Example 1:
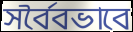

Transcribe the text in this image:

সর্বৈবভাবে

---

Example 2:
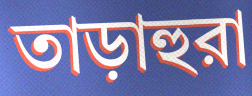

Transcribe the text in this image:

তাড়াহুরা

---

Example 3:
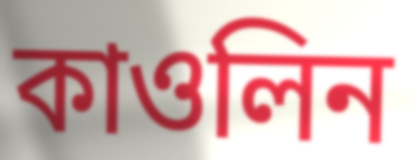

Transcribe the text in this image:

কাওলিন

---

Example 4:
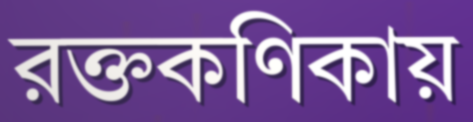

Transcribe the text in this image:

রক্তকণিকায়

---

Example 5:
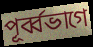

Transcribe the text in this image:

পূর্ব্বভাগে